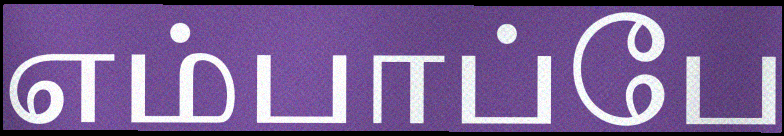
எம்பாப்பே